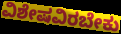
ವಿಶೇಷವಿರಬೇಕು